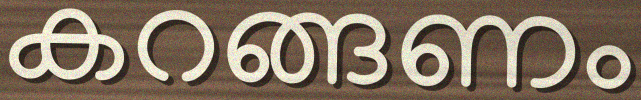
കറങ്ങണം